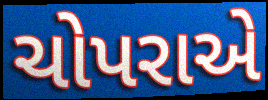
ચોપરાએ